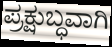
ಪ್ರಕ್ಷುಬ್ಧವಾಗಿ